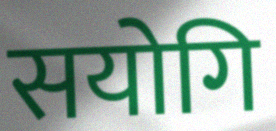
सयोगि